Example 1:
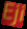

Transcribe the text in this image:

Eji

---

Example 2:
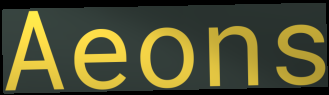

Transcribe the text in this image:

Aeons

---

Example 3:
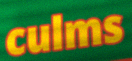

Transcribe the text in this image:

culms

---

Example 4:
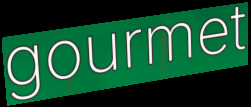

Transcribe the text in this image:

gourmet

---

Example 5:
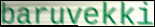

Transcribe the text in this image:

baruvekki